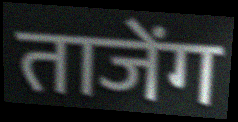
ताजेंग